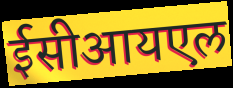
ईसीआयएल